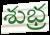
శుభ్ర